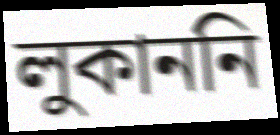
লুকাননি